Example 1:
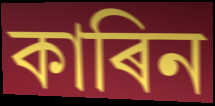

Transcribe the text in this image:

কাৰিন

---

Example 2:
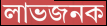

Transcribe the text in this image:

লাভজনক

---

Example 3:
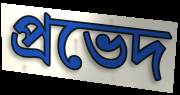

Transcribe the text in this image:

প্ৰভেদ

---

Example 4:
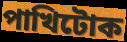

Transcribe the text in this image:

পাখিটোক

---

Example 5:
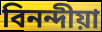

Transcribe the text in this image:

বিনন্দীয়া